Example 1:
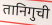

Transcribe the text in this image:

तानिगुची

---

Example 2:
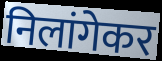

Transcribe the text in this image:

निलांगेकर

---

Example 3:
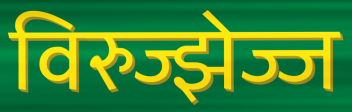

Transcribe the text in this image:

विरुज्झेज्ज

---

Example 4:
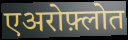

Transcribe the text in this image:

एअरोफ़्लोत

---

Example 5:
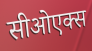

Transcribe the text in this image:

सीओएक्स